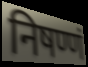
निषण्णं